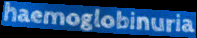
haemoglobinuria